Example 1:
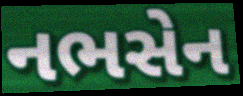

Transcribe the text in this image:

નભસેન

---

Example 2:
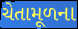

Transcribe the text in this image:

ચેતામૂળના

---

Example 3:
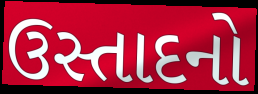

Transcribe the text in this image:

ઉસ્તાદનો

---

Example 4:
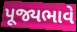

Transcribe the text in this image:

પૂજ્યભાવે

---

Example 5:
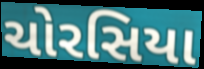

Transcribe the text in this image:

ચોરસિયા